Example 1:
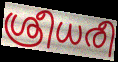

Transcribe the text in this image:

ശ്രീധരീ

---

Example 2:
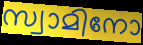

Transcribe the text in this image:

സ്വാമിനോ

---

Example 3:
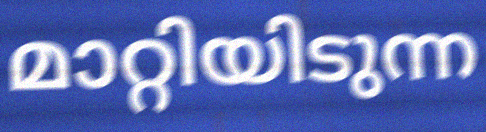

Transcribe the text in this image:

മാറ്റിയിടുന്ന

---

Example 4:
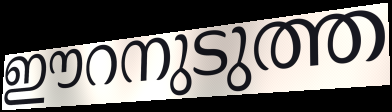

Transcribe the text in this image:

ഈറനുടുത്ത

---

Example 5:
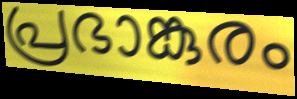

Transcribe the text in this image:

പ്രഭാങ്കുരം